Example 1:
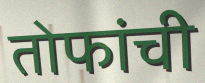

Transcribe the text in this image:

तोफांची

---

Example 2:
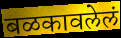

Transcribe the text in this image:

बळकावलेलं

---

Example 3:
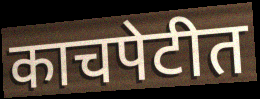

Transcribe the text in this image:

काचपेटीत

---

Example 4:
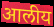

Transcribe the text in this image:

आलीय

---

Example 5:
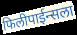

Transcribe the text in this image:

फिलीपाईन्सला